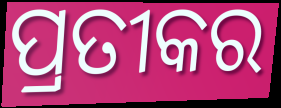
ପ୍ରତୀକର